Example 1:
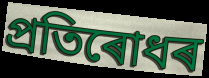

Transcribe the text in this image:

প্ৰতিৰোধৰ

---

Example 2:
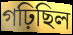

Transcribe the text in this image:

গঢ়িছিল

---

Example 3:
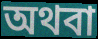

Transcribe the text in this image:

অথবা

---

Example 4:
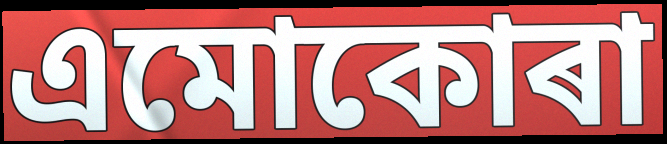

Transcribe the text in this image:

এমোকোৰা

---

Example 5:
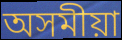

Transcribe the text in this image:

অসমীয়া